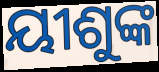
ୟୀଶୁଙ୍କ